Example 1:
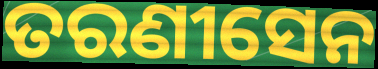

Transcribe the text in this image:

ତରଣୀସେନ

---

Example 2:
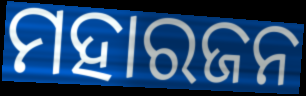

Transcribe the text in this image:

ମହାରଜନ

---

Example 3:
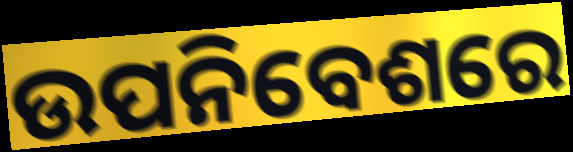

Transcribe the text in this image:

ଉପନିବେଶରେ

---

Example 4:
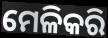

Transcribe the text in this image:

ମେଳିକରି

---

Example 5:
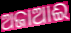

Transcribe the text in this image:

ଅଜାଆଈ